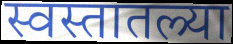
स्वस्तातल्या